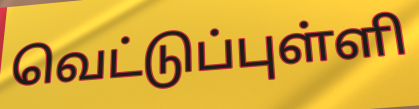
வெட்டுப்புள்ளி